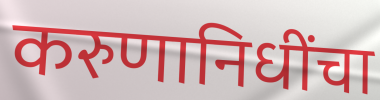
करुणानिधींचा